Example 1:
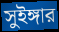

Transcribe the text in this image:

সুইঙ্গার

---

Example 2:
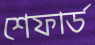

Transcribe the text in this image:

শেফার্ড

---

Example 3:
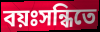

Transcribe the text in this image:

বয়ঃসন্ধিতে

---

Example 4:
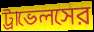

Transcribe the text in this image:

ট্রাভেলসের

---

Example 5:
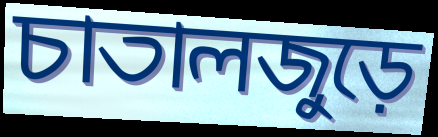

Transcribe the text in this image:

চাতালজুড়ে